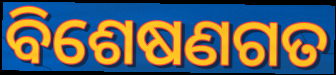
ବିଶେଷଣଗତ